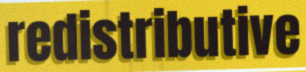
redistributive